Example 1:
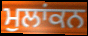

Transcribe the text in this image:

ਮੁਲਾਂਕਨ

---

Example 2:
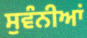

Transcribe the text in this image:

ਸੁਵੰਨੀਆਂ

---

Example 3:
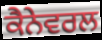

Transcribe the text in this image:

ਕੈਨੇਵਰਲ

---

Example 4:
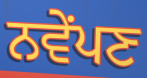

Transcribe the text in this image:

ਨਵੇਂਪਣ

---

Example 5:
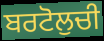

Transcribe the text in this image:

ਬਰਟੋਲੁਚੀ